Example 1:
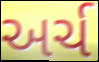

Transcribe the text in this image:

અર્ચ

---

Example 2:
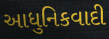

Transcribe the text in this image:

આધુનિકવાદી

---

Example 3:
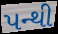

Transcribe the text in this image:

પન્થી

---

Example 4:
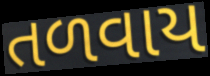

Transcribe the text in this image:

તળવાય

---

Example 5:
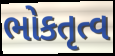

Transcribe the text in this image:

ભોકતૃત્વ